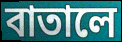
বাতালে